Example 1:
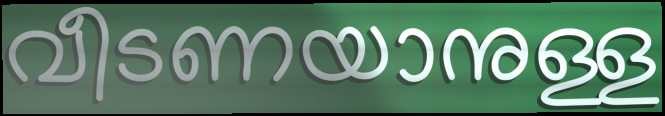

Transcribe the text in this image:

വീടണയാനുള്ള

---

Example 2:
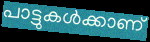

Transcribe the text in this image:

പാട്ടുകൾക്കാണ്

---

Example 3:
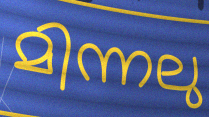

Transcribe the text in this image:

മിന്നലു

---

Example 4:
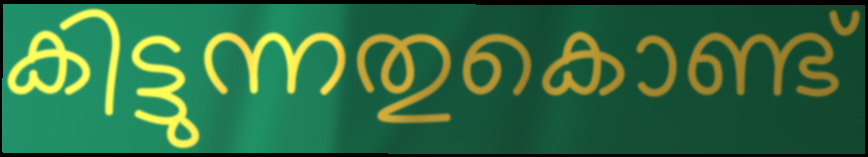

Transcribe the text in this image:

കിട്ടുന്നതുകൊണ്ട്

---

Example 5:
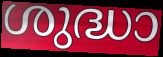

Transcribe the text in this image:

ശുദ്ധാ